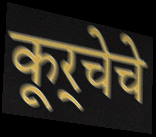
कूर्चेचे